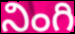
నింగి